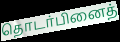
தொடர்பினைத்